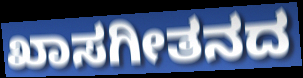
ಖಾಸಗೀತನದ